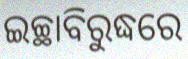
ଇଚ୍ଛାବିରୁଦ୍ଧରେ